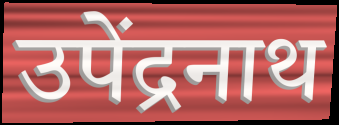
उपेंद्रनाथ